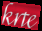
krte